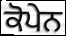
ਕੋਪੇਨ